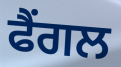
ਫੈਂਗਲ